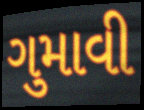
ગુમાવી